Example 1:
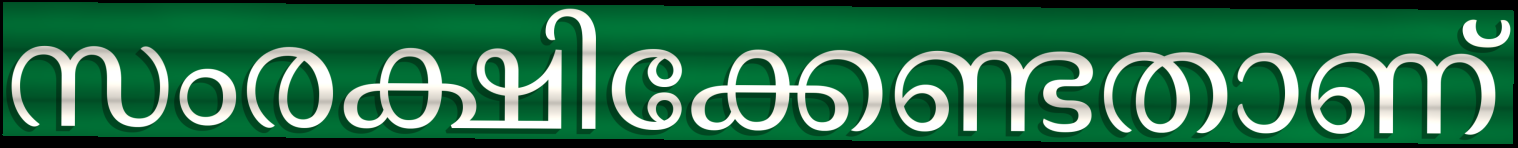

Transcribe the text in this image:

സംരക്ഷിക്കേണ്ടതാണ്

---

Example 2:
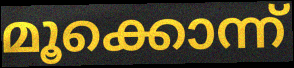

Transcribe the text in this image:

മൂക്കൊന്ന്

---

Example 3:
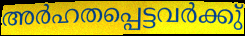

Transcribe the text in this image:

അർഹതപ്പെട്ടവർക്കു്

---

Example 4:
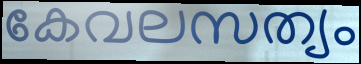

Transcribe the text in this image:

കേവലസത്യം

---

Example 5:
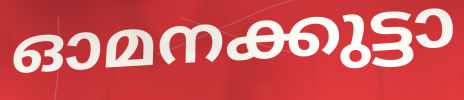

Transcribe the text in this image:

ഓമനക്കുട്ടാ